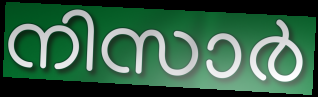
നിസാർ